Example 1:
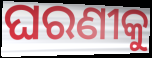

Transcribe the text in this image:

ଘରଣୀକୁ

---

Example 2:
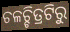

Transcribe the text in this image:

ଚଳଚ୍ଚିତ୍ରଟିରୁ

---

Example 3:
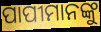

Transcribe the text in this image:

ପାପୀମାନଙ୍କୁ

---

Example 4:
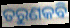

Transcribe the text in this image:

ତରୁଣକବି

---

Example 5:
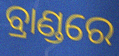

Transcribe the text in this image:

ବ୍ରାଣ୍ଡରେ